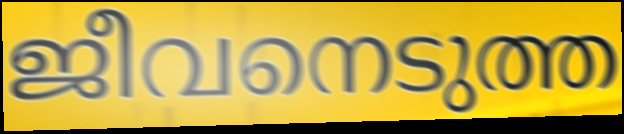
ജീവനെടുത്ത